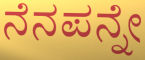
ನೆನಪನ್ನೇ